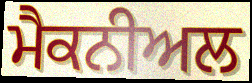
ਮੈਕਨੀਅਲ